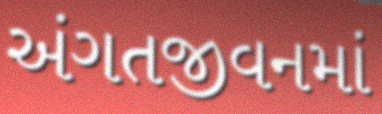
અંગતજીવનમાં